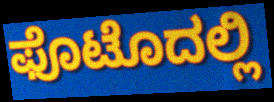
ಫೊಟೊದಲ್ಲಿ